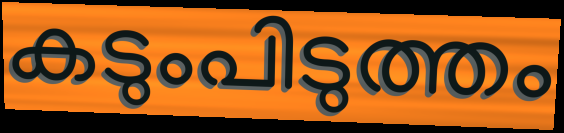
കടുംപിടുത്തം